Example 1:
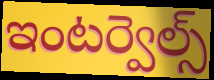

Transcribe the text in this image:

ఇంటర్వెల్స్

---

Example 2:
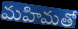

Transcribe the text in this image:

మహిమతో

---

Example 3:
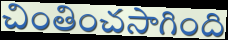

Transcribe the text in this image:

చింతించసాగింది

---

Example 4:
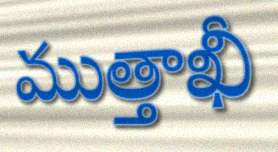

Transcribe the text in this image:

ముత్తాఖీ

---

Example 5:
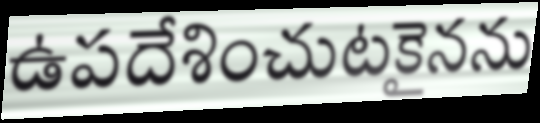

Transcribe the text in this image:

ఉపదేశించుటకైనను